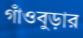
গাঁওবুড়ার